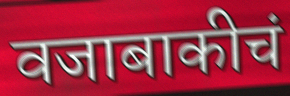
वजाबाकीचं